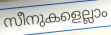
സീനുകളെല്ലാം